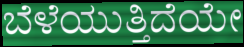
ಬೆಳೆಯುತ್ತಿದೆಯೇ